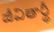
జీవితార్థీ